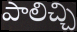
పాలిచ్చి